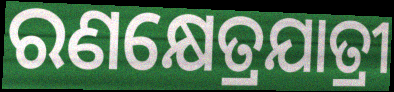
ରଣକ୍ଷେତ୍ରଯାତ୍ରୀ